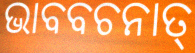
ଭାବବଚନାତ୍